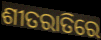
ଶୀତରାତିରେ